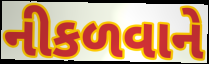
નીકળવાને